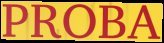
PROBA